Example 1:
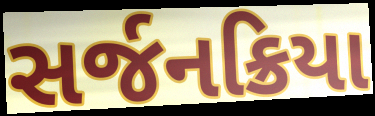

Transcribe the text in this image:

સર્જનક્રિયા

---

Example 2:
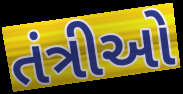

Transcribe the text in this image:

તંત્રીઓ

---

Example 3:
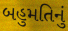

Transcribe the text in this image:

બહુમતિનું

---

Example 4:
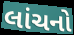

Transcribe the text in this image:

લાંચનો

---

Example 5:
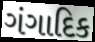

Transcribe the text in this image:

ગંગાદિક